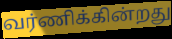
வர்ணிக்கின்றது